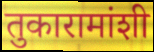
तुकारामांशी